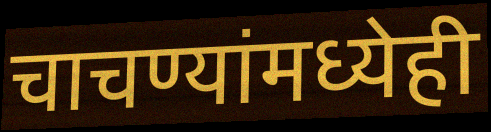
चाचण्यांमध्येही